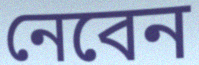
নেবেন